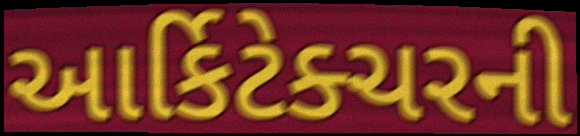
આર્કિટેક્ચરની